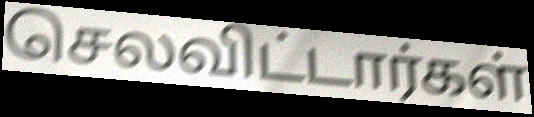
செலவிட்டார்கள்